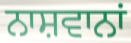
ਨਾਸ਼ਵਾਨਾਂ